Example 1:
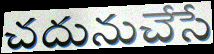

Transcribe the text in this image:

చదునుచేసే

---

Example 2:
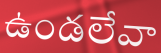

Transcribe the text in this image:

ఉండలేవా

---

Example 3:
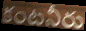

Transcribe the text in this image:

కంటనీరు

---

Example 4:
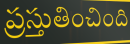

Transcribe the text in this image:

ప్రస్తుతించింది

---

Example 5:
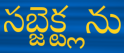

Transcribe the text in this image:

సబ్జెక్ట్లను